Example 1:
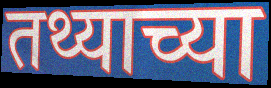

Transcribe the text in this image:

तथ्याच्या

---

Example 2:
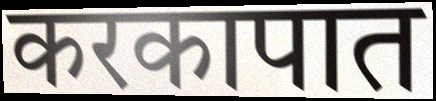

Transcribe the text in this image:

करकापात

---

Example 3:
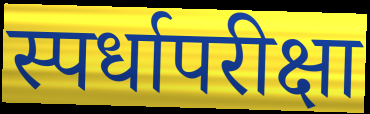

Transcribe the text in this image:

स्पर्धापरीक्षा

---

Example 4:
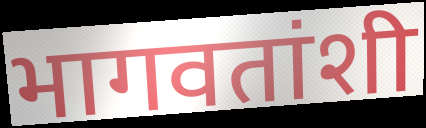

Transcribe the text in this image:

भागवतांशी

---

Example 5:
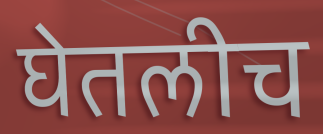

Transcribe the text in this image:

घेतलीच